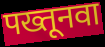
पख्तूनवा